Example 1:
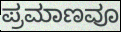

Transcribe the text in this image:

ಪ್ರಮಾಣವೂ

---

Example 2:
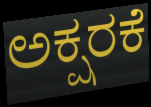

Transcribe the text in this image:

ಅಕ್ಷರಕೆ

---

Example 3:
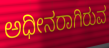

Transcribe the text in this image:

ಅಧೀನರಾಗಿರುವ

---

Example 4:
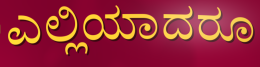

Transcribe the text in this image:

ಎಲ್ಲಿಯಾದರೂ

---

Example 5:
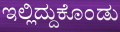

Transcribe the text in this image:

ಇಲ್ಲಿದ್ದುಕೊಂಡು